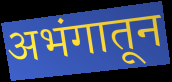
अभंगातून